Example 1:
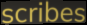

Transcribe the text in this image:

scribes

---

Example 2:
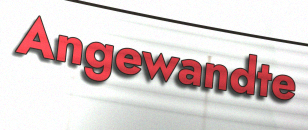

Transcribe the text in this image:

Angewandte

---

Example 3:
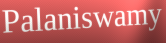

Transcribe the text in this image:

Palaniswamy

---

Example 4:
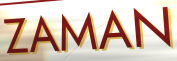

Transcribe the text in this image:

ZAMAN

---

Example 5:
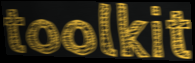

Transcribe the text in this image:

toolkit